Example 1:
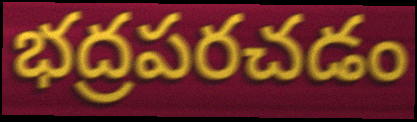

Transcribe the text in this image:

భద్రపరచడం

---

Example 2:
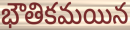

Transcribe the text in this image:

భౌతికమయిన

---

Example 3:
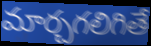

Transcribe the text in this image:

మార్చగలిగితే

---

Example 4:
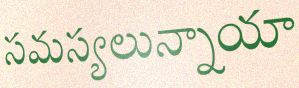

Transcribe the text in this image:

సమస్యలున్నాయా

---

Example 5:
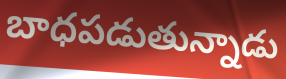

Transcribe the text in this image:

బాధపడుతున్నాడు